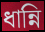
ধান্নি